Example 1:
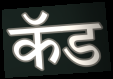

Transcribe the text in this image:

कॅड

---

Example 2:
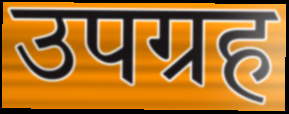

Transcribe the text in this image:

उपग्रह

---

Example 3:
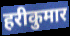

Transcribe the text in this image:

हरीकुमार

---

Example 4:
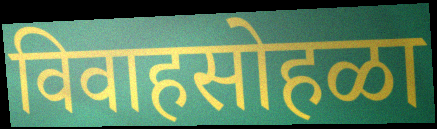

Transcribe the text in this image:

विवाहसोहळा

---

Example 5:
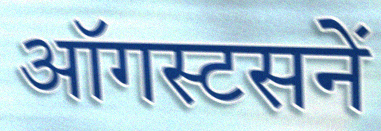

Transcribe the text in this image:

ऑगस्टसनें